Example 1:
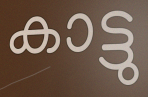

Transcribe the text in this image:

കാട്ടു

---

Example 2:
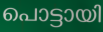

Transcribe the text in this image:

പൊട്ടായി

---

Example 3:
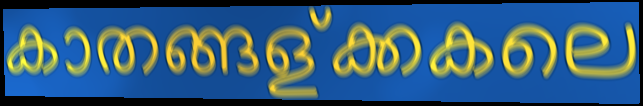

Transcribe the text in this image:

കാതങ്ങള്ക്കകലെ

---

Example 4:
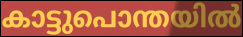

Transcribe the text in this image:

കാട്ടുപൊന്തയിൽ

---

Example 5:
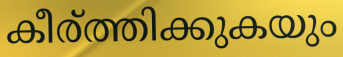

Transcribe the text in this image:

കീര്ത്തിക്കുകയും